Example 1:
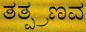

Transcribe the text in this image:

ತತ್ಪ್ರಣವ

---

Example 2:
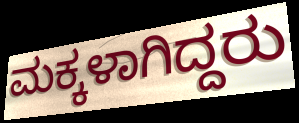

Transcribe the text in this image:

ಮಕ್ಕಳಾಗಿದ್ದರು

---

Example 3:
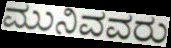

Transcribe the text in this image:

ಮುನಿವವರು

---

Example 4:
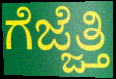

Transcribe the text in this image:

ಗೆಜ್ಜೆತ್ತಿ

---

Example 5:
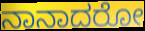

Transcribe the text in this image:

ನಾನಾದರೋ